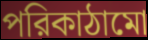
পরিকাঠামো